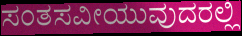
ಸಂತಸವೀಯುವುದರಲ್ಲಿ